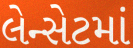
લેન્સેટમાં